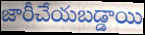
జారీచేయబడ్డాయి